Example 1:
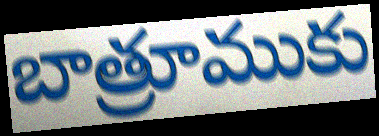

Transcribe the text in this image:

బాత్రూముకు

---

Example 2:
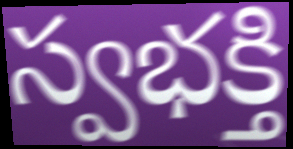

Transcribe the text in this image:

స్వభక్తి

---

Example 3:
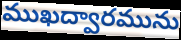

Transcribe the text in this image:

ముఖద్వారమును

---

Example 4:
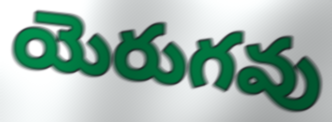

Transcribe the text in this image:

యెరుగవు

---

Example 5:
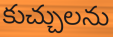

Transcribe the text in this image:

కుచ్చులను